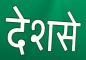
देशसे